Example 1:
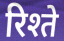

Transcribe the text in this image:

रिश्ते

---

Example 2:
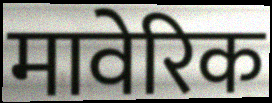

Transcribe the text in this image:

मावेरिक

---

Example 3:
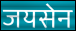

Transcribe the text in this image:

जयसेन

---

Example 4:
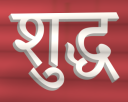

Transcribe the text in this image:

शुद्ध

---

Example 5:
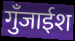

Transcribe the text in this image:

गुँजाईश